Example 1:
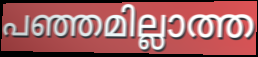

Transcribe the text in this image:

പഞ്ഞമില്ലാത്ത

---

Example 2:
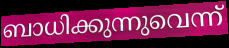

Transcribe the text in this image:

ബാധിക്കുന്നുവെന്ന്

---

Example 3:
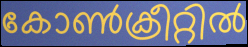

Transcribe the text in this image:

കോൺക്രീറ്റിൽ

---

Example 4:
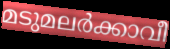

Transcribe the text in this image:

മടുമലർക്കാവീ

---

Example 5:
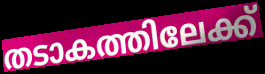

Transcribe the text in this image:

തടാകത്തിലേക്ക്